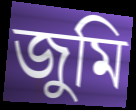
জুমি